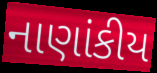
નાણાંકીય